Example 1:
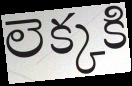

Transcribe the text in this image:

లెక్కకి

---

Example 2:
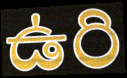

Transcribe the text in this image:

ఉరి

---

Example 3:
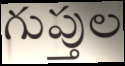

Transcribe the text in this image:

గుప్తుల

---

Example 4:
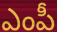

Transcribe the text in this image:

ఎంపీ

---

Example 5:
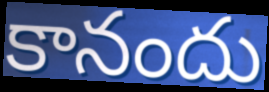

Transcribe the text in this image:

కానందు